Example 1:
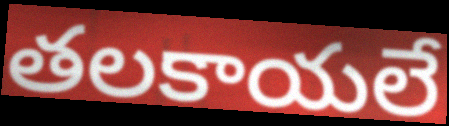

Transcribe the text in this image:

తలకాయలే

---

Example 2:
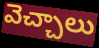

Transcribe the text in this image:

వెచ్చాలు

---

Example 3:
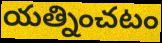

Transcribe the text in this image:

యత్నించటం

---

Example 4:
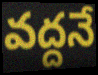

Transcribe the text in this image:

వద్దనే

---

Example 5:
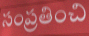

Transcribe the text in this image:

సంప్రతించి